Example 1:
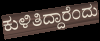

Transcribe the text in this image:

ಕುಳಿತಿದ್ದಾರೆಂದು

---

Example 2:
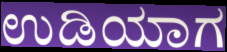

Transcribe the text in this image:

ಉಡಿಯಾಗ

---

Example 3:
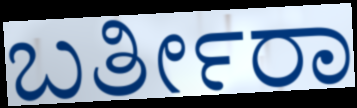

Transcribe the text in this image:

ಬರ್ತೀರಾ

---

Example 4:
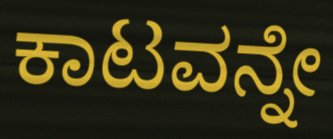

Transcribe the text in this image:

ಕಾಟವನ್ನೇ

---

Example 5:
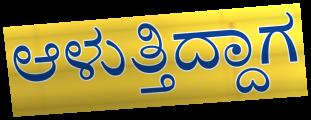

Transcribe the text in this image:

ಆಳುತ್ತಿದ್ದಾಗ